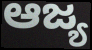
ಆಜ್ಯ